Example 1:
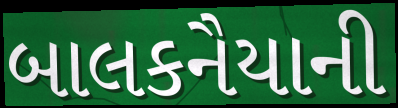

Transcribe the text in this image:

બાલકનૈયાની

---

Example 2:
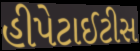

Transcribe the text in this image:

હીપેટાઈટીસ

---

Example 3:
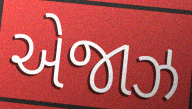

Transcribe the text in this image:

એજાઝ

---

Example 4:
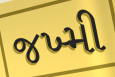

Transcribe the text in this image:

જખ્મી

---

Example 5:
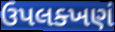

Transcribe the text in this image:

ઉપલક્ખણં